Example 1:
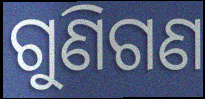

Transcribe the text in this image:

ଗୁଣିଗଣ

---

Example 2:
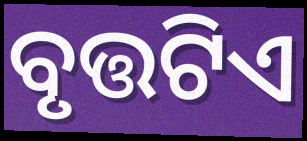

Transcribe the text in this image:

ବୃତ୍ତଟିଏ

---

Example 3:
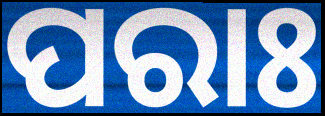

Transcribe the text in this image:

ପରାଃ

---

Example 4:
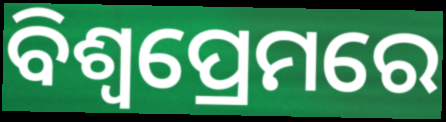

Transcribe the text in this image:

ବିଶ୍ୱପ୍ରେମରେ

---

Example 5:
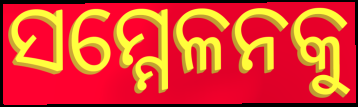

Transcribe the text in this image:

ସମ୍ମେଳନକୁ